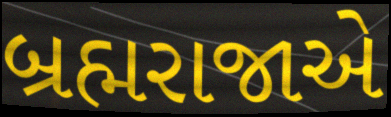
બ્રહ્મરાજાએ